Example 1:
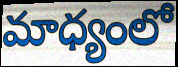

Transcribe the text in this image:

మాధ్యంలో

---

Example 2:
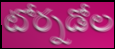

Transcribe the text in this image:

టోర్నడోల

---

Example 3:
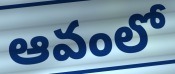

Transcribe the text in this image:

ఆవంలో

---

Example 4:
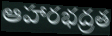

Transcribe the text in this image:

ఆహారభద్రత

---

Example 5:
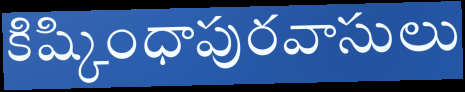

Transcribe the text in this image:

కిష్కింధాపురవాసులు